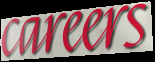
careers